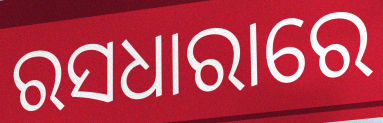
ରସଧାରାରେ